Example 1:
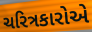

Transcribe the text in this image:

ચરિત્રકારોએ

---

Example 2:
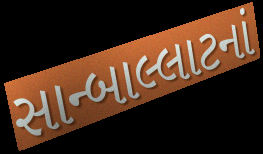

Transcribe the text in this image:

સાન્બાલ્લાટનાં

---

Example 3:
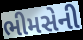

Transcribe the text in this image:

ભીમસેની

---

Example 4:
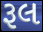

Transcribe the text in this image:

રૂલ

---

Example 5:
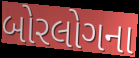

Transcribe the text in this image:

બોરલોગના